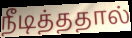
நீடித்ததால்